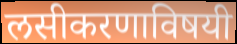
लसीकरणाविषयी